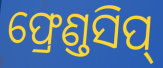
ଫ୍ରେଣ୍ଡସିପ୍